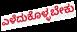
ಎಳೆದುಕೊಳ್ಳಬೇಕು